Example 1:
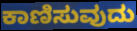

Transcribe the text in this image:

ಕಾಣಿಸುವುದು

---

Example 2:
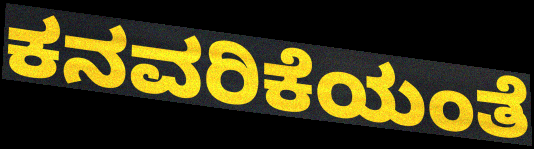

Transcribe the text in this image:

ಕನವರಿಕೆಯಂತೆ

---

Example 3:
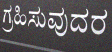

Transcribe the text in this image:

ಗ್ರಹಿಸುವುದರ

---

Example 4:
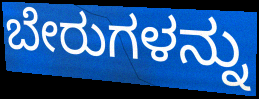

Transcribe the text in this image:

ಬೇರುಗಳನ್ನು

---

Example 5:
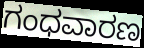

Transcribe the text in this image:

ಗಂಧವಾರಣ